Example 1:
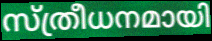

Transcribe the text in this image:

സ്ത്രീധനമായി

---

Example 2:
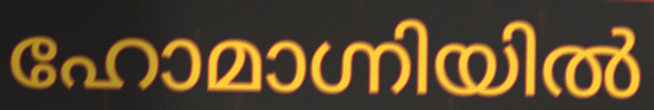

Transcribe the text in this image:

ഹോമാഗ്നിയിൽ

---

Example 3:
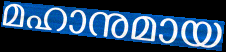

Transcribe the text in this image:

മഹാനുമായ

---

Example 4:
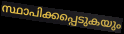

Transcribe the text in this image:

സ്ഥാപിക്കപ്പെടുകയും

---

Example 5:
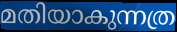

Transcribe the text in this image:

മതിയാകുന്നത്ര